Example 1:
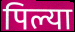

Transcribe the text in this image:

पिल्या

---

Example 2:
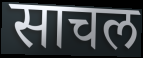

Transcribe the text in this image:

साचल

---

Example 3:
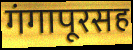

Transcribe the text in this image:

गंगापूरसह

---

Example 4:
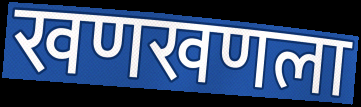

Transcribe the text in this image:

खणखणला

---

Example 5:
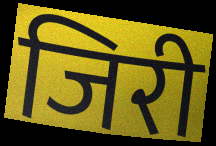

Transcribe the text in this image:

जिरी